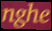
nghe